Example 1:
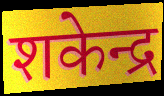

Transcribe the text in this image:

शकेन्द्र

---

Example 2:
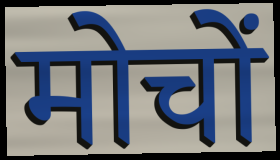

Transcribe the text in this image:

मोचों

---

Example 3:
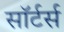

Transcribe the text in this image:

सॉर्टर्स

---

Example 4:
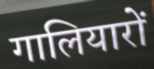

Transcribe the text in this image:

गालियारों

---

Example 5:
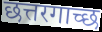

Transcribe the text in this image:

छत्तरगाच्छ